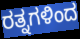
ರತ್ನಗಳಿಂದ